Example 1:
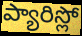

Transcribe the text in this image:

ప్యారిస్లో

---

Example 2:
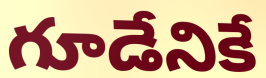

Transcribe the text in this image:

గూడేనికే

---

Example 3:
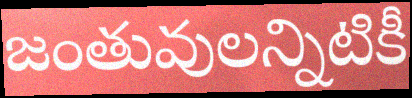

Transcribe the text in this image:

జంతువులన్నిటికీ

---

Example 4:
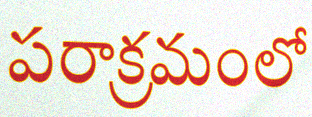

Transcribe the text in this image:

పరాక్రమంలో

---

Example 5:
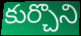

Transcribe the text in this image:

కుర్చొని